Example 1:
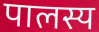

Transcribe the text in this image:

पालस्य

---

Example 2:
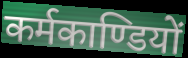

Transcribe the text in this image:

कर्मकाण्डियों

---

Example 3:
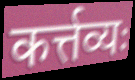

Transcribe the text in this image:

कर्त्तव्यः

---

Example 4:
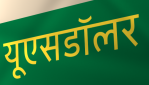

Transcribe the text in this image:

यूएसडॉलर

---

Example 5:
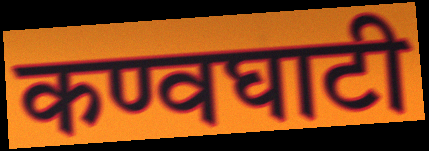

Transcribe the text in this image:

कण्वघाटी